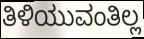
ತಿಳಿಯುವಂತಿಲ್ಲ